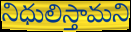
నిధులిస్తామని